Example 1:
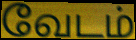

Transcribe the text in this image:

வேடம்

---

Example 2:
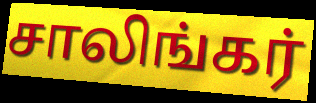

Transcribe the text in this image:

சாலிங்கர்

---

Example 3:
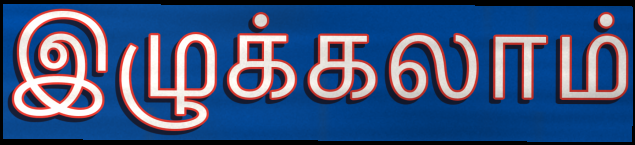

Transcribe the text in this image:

இழுக்கலாம்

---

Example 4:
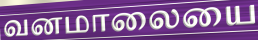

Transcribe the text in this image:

வனமாலையை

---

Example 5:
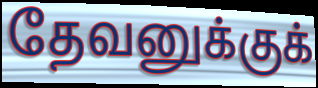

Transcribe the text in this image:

தேவனுக்குக்